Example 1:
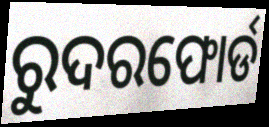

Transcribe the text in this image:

ରୁଦରଫୋର୍ଡ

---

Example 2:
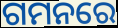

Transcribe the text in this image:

ଗମନରେ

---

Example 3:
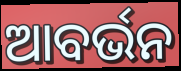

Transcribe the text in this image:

ଆବର୍ଭନ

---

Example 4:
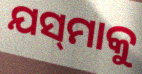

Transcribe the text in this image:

ଯସ୍‌ମାକୁ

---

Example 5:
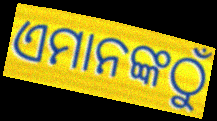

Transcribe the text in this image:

ଏମାନଙ୍କଠୁଁ